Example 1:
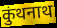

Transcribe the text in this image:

कुंथनाथ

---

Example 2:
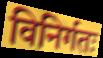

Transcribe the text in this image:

विनिर्गतः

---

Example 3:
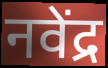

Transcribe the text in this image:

नवेंद्र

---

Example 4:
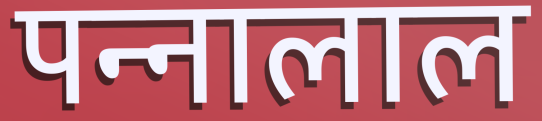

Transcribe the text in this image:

पन्नालाल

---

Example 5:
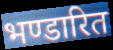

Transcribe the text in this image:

भण्डारित